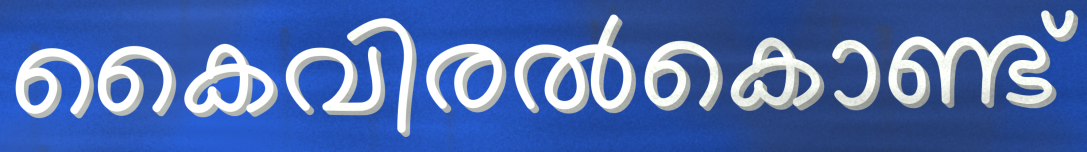
കൈവിരൽകൊണ്ട്